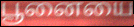
பூனையை